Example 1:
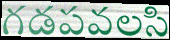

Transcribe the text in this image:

గడపవలసి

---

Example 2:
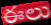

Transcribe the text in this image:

ఈలు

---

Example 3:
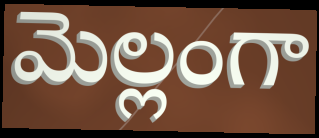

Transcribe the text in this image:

మెల్లంగా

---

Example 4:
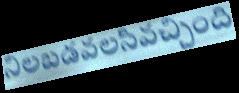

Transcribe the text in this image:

నిలబడవలసివచ్చింది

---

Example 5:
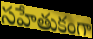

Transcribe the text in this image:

సహేతుకంగా